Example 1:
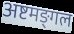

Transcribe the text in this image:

अष्टमङ्गल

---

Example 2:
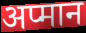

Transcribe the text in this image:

अप्मान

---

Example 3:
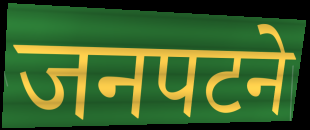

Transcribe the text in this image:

जनपटने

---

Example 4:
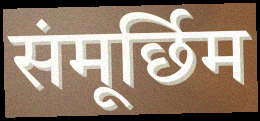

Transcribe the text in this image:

संमूर्छिम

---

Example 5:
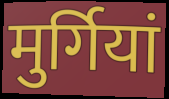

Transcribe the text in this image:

मुर्गियां